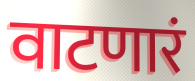
वाटणारं